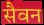
सैवन